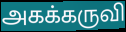
அகக்கருவி